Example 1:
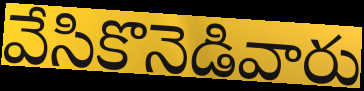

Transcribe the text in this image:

వేసికొనెడివారు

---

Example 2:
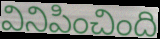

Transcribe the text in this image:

వినిపించింది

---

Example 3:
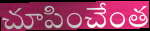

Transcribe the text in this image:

చూపించేంత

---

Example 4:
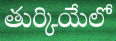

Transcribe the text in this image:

తుర్కియేలో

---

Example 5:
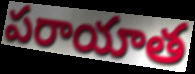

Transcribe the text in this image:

పరాయాత